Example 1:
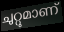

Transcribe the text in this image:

ചുറ്റുമാണ്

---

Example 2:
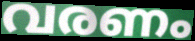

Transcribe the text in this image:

വരണം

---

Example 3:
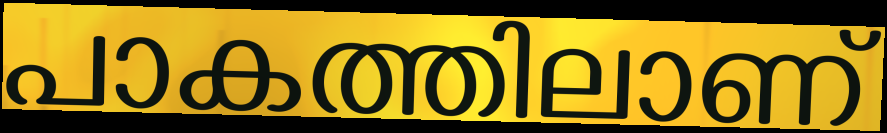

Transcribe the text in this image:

പാകത്തിലാണ്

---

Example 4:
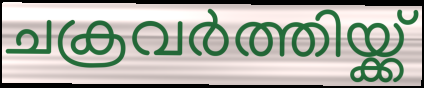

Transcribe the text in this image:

ചക്രവർത്തിയ്ക്ക്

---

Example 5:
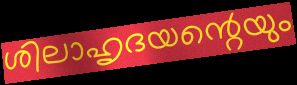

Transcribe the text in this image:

ശിലാഹൃദയന്റെയും